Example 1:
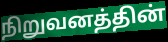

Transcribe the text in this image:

நிறுவனத்தின்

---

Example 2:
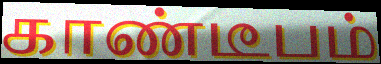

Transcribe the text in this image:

காண்டீபம்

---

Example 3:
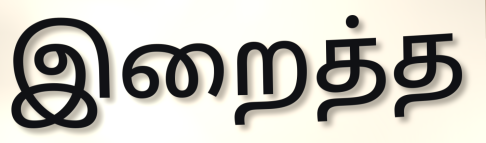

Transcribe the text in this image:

இறைத்த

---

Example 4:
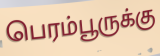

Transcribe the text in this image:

பெரம்பூருக்கு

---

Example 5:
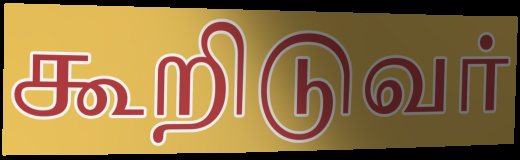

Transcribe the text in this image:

கூறிடுவர்